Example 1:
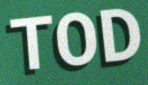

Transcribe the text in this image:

TOD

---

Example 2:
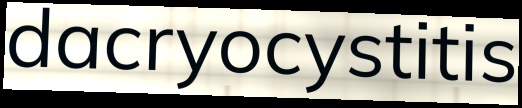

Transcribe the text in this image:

dacryocystitis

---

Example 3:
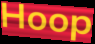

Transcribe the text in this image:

Hoop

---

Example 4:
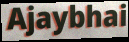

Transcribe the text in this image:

Ajaybhai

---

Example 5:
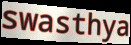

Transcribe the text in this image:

swasthya